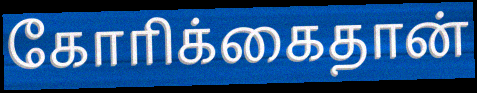
கோரிக்கைதான்